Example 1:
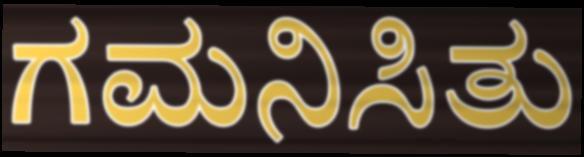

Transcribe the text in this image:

ಗಮನಿಸಿತು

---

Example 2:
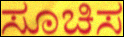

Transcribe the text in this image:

ಸೂಚಿಸ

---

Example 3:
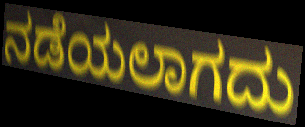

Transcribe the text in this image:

ನಡೆಯಲಾಗದು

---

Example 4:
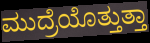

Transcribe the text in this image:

ಮುದ್ರೆಯೊತ್ತುತ್ತಾ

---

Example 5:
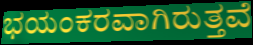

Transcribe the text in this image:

ಭಯಂಕರವಾಗಿರುತ್ತವೆ